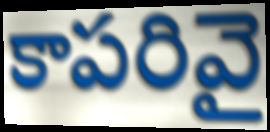
కాపరివై